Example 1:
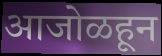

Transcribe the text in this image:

आजोळहून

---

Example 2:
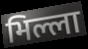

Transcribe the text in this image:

भिल्ला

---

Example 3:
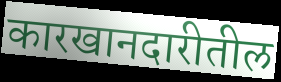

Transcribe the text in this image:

कारखानदारीतील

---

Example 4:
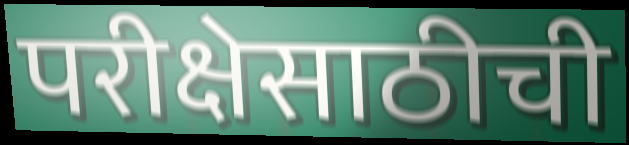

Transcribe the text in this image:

परीक्षेसाठीची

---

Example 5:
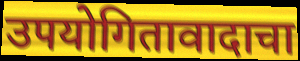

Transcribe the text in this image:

उपयोगितावादाचा